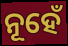
ନୂହେଁ